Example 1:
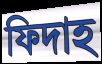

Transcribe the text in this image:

ফিদাহ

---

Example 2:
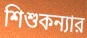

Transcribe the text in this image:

শিশুকন্যার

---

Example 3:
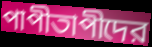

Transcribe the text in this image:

পাপীতাপীদের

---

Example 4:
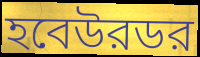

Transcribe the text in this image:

হবেউরডর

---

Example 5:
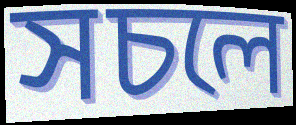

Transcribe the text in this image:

সচলে